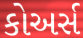
કોઅર્સ